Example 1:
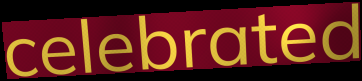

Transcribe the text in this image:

celebrated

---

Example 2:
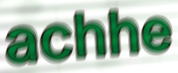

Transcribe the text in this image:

achhe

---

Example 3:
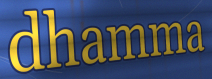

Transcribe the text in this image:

dhamma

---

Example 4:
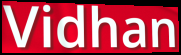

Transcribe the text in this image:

Vidhan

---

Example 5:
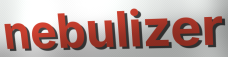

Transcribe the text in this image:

nebulizer